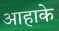
आहाके